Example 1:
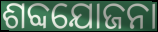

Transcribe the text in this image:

ଶବ୍ଦଯୋଜନା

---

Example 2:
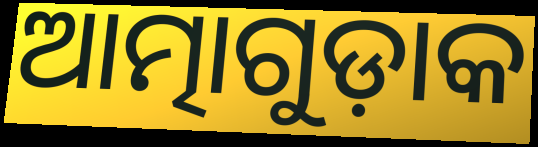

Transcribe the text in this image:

ଆତ୍ମାଗୁଡ଼ାକ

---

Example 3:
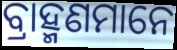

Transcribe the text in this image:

ବ୍ରାହ୍ମଣମାନେ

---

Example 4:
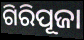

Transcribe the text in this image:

ଗିରିପୂଜା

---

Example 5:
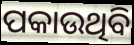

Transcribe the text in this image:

ପକାଉଥିବି